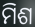
ମିଶ